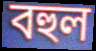
বহুল